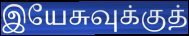
இயேசுவுக்குத்